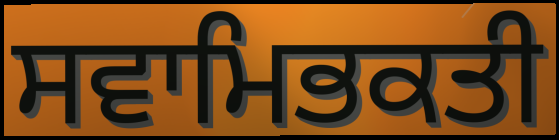
ਸਵਾਮਿਭਕਤੀ